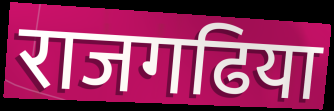
राजगढिया